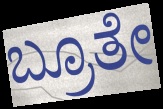
ಬ್ರೂತೇ